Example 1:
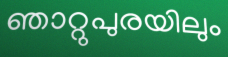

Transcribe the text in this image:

ഞാറ്റുപുരയിലും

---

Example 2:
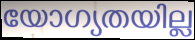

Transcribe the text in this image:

യോഗ്യതയില്ല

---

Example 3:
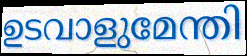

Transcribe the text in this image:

ഉടവാളുമേന്തി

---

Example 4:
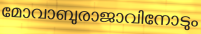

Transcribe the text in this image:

മോവാബുരാജാവിനോടും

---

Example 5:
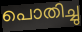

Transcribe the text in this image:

പൊതിച്ചു